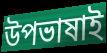
উপভাষাই